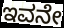
ಇವನೇ